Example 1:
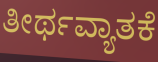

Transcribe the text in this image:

ತೀರ್ಥವ್ಯಾತಕೆ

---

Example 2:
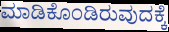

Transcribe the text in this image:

ಮಾಡಿಕೊಂಡಿರುವುದಕ್ಕೆ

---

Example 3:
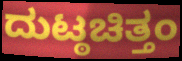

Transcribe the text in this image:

ದುಟ್ಠಚಿತ್ತಂ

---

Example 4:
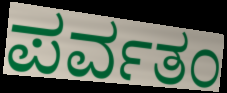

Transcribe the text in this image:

ಪರ್ವತಂ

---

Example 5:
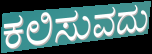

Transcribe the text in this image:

ಕಲಿಸುವದು